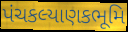
પંચકલ્યાણકભૂમિ